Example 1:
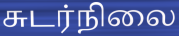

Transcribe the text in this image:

சுடர்நிலை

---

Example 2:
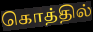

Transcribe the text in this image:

கொத்தில்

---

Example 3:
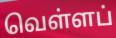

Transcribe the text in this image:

வெள்ளப்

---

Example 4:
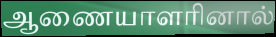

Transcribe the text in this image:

ஆணையாளரினால்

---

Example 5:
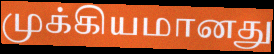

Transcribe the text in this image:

முக்கியமானது